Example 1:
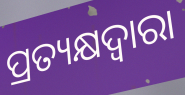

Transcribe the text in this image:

ପ୍ରତ୍ୟକ୍ଷଦ୍ବାରା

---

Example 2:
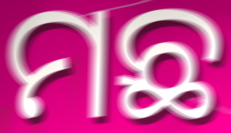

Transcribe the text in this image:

ମଛ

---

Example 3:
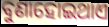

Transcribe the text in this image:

ବୁଣାହୋଇଥାଏ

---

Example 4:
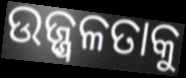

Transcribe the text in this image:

ଉଜ୍ଜ୍ୱଳତାକୁ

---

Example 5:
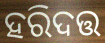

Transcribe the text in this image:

ହରିଦତ୍ତ